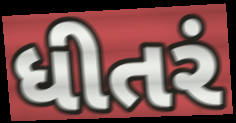
ધીતરં